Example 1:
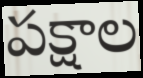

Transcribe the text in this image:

పక్షాల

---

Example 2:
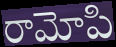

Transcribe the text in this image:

రామోపి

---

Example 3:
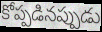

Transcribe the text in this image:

కోప్పడినప్పుడు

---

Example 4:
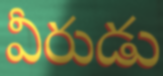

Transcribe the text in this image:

వీరుడు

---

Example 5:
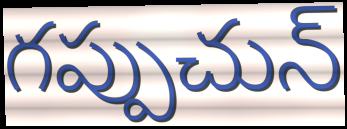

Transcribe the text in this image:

గప్పుచున్